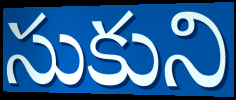
సుకుని